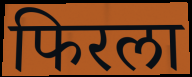
फिरला